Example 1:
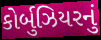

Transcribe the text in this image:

કોર્બુઝિયરનું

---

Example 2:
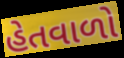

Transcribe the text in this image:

હેતવાળો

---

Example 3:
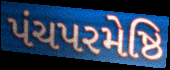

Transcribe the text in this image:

પંચપરમેષ્ઠિ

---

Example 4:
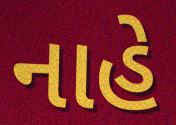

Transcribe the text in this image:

નાહે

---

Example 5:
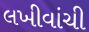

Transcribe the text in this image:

લખીવાંચી